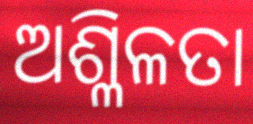
ଅଶ୍ଳିଳତା